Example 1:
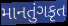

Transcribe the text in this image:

માનતુંગકૃત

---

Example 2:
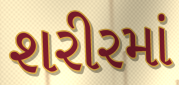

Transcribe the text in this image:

શરીરમાં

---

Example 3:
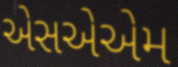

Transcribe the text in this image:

એસએએમ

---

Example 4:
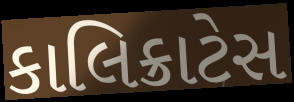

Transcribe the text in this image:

કાલિક્રાટેસ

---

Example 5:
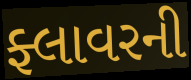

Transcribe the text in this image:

ફ્લાવરની